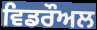
ਵਿਡਰੌਅਲ